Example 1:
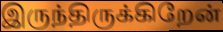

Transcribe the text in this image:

இருந்திருக்கிறேன்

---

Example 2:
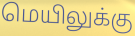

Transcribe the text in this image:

மெயிலுக்கு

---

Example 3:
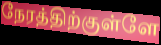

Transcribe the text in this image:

நேரத்திற்குள்ளே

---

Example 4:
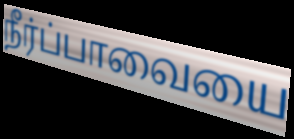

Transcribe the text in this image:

நீர்ப்பாவையை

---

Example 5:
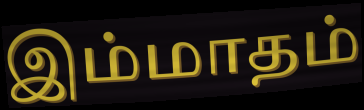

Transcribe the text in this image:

இம்மாதம்